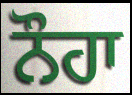
ਨੌਹਾ